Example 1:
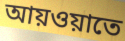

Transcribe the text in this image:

আয়ওয়াতে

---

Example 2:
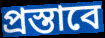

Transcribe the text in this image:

প্রস্তাবে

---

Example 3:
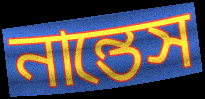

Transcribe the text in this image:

নান্তেস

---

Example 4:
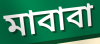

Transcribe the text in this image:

মাবাবা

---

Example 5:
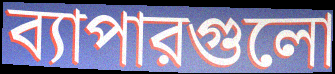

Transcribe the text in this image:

ব্যাপারগুলো